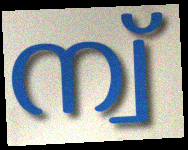
ന്വ്